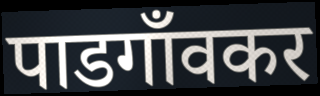
पाडगाँवकर